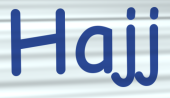
Hajj